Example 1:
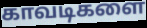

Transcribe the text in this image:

காவடிகளை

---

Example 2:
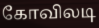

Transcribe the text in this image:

கோவிலடி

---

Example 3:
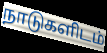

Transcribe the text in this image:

நாடுகளிடம்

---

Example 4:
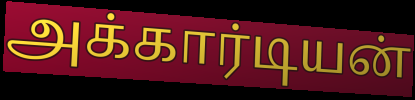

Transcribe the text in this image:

அக்கார்டியன்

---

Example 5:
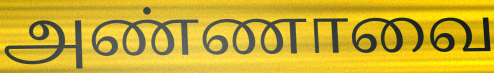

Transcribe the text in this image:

அண்ணாவை